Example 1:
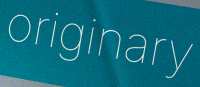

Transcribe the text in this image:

originary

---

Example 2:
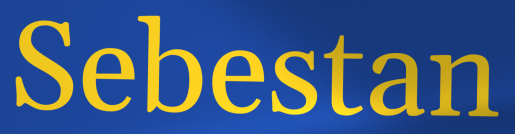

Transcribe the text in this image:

Sebestan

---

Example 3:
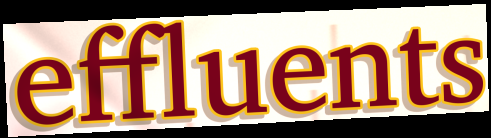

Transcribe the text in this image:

effluents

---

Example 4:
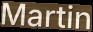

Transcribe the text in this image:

Martin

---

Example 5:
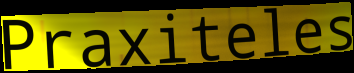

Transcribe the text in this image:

Praxiteles